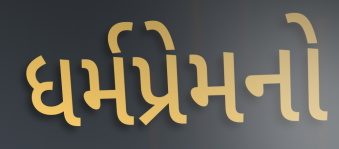
ધર્મપ્રેમનો